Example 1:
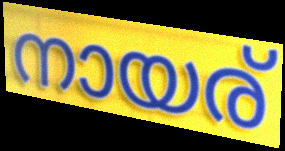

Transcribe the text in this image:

നായര്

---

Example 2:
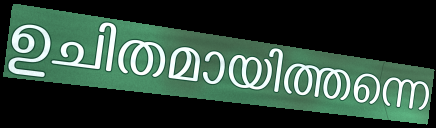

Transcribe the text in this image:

ഉചിതമായിത്തന്നെ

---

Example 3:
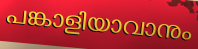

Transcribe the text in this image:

പങ്കാളിയാവാനും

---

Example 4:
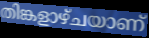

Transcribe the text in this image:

തിങ്കളാഴ്ചയാണ്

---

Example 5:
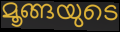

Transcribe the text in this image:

മൂങ്ങയുടെ